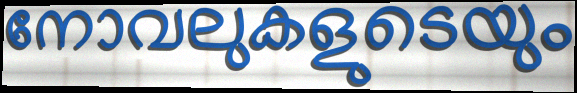
നോവലുകളുടെയും